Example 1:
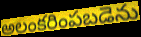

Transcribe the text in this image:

అలంకరింపబడెను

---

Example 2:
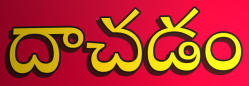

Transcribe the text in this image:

దాచడం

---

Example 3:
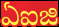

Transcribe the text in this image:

ఏఐజి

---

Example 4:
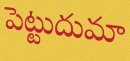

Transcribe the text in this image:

పెట్టుదుమా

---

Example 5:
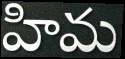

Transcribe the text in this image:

హిమ